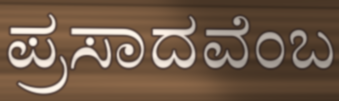
ಪ್ರಸಾದವೆಂಬ